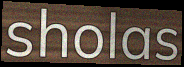
sholas